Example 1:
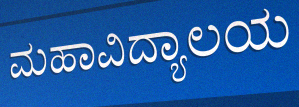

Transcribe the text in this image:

ಮಹಾವಿದ್ಯಾಲಯ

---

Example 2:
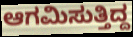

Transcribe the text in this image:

ಆಗಮಿಸುತ್ತಿದ್ದ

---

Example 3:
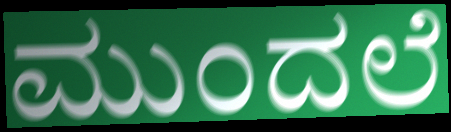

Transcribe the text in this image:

ಮುಂದಲೆ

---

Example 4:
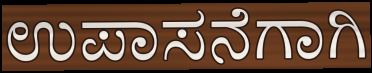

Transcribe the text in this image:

ಉಪಾಸನೆಗಾಗಿ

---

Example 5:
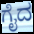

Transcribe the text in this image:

ಗೈದ